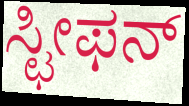
ಸ್ಟೀಫನ್